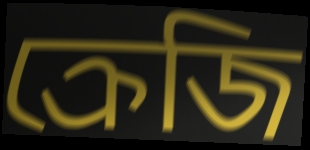
ক্রেজি